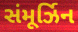
સંમૂર્ઝિન